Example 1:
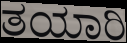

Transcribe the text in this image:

ತಯಾರಿ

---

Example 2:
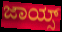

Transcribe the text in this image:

ಜಾಯ್ಸ್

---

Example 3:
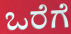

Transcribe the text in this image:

ಒರೆಗೆ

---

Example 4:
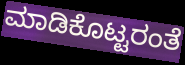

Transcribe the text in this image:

ಮಾಡಿಕೊಟ್ಟರಂತೆ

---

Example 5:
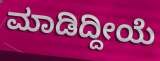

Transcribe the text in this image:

ಮಾಡಿದ್ದೀಯೆ